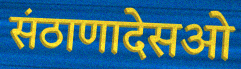
संठाणादेसओ